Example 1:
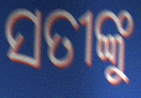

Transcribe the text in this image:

ସତୀଙ୍କୁ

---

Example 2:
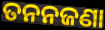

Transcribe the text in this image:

ତନନଜଣା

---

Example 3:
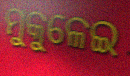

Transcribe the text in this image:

ମୁକୁଳେଇ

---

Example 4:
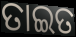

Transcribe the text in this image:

ତାଇତ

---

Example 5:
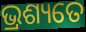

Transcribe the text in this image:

ଭ୍ରଶ୍ୟତେ